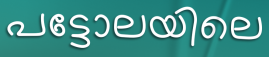
പട്ടോലയിലെ